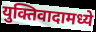
युक्तिवादामध्ये